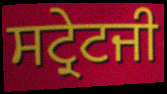
ਸਟ੍ਰੇਟਜੀ